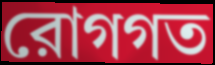
রোগগত